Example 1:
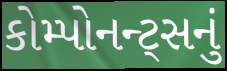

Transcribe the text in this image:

કોમ્પોનન્ટ્સનું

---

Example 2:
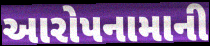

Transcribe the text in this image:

આરોપનામાની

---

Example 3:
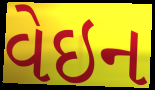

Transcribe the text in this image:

વેઇન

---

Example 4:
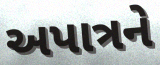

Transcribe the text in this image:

અપાત્રને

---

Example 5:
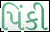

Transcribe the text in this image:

પિંકી